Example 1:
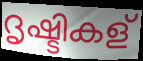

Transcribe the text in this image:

ദൃഷ്ടികള്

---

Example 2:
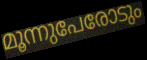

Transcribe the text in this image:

മൂന്നുപേരോടും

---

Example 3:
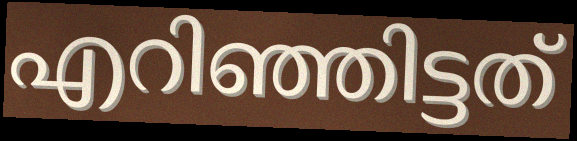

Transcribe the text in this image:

എറിഞ്ഞിട്ടത്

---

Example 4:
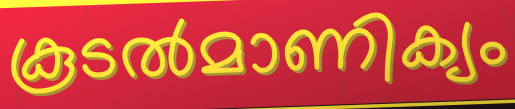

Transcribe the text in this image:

കൂടൽമാണിക്യം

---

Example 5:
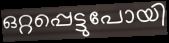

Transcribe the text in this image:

ഒറ്റപ്പെട്ടുപോയി